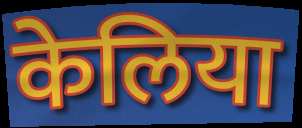
केलिया